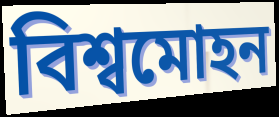
বিশ্বমোহন